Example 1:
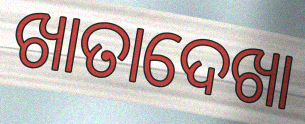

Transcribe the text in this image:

ଖାତାଦେଖା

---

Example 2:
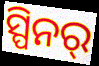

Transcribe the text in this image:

ସ୍ପିନର୍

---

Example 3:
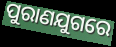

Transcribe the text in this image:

ପୁରାଣଯୁଗରେ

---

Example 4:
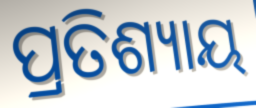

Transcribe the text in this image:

ପ୍ରତିଶ୍ୟାୟ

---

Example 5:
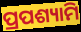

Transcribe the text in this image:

ପ୍ରପଶ୍ୟାମି